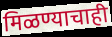
मिळण्याचाही